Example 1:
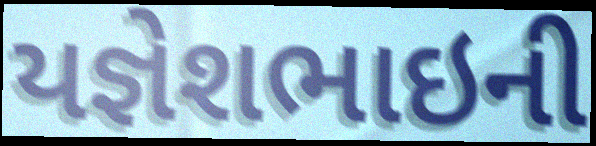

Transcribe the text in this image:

યજ્ઞેશભાઇની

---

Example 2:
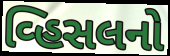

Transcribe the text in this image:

વ્હિસલનો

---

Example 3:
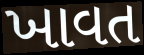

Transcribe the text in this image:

ખાવત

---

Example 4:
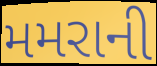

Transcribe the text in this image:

મમરાની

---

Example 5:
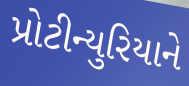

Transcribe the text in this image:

પ્રોટીન્યુરિયાને